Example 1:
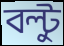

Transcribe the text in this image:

বল্টু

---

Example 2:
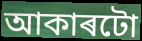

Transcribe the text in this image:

আকাৰটো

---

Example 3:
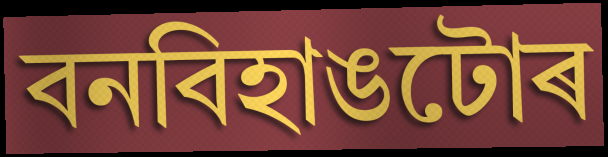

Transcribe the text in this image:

বনবিহাঙটোৰ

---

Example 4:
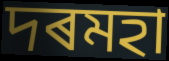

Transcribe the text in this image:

দৰমহা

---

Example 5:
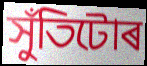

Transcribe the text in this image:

সুঁতিটোৰ